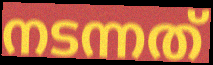
നടന്നത്